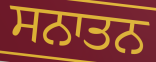
ਸਨਾਤਨ